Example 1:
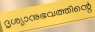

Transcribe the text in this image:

ദൃശ്യാനുഭവത്തിന്റെ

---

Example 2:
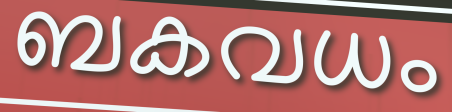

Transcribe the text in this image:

ബകവധം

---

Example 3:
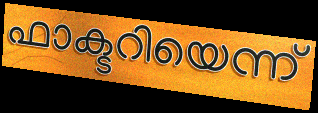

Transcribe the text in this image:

ഫാക്ടറിയെന്ന്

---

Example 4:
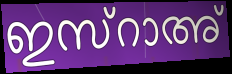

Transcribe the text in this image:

ഇസ്റാഅ്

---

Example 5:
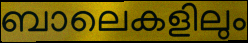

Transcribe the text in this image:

ബാലെകളിലും